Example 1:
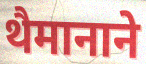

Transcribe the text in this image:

थैमानाने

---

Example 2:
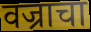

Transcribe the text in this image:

वज्राचा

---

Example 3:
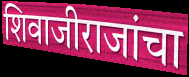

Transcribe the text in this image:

शिवाजीराजांचा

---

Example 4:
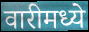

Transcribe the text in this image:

वारीमध्ये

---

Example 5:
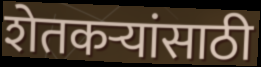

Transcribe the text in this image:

शेतकर्‍यांसाठी